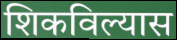
शिकविल्यास